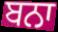
ਬਨਾ